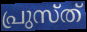
പ്രുസ്ത്